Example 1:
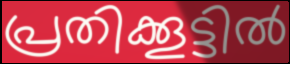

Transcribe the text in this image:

പ്രതിക്കൂട്ടിൽ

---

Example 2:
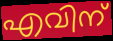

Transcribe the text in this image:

എവിന്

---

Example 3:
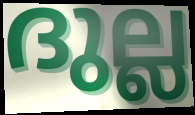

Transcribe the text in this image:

ദുല്ല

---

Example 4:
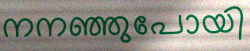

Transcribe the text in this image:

നനഞ്ഞുപോയി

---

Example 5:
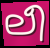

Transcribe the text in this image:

ലീ